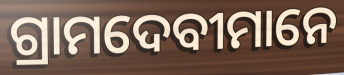
ଗ୍ରାମଦେବୀମାନେ